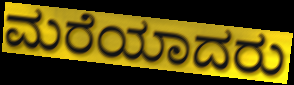
ಮರೆಯಾದರು